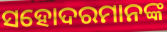
ସହୋଦରମାନଙ୍କ